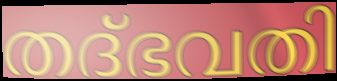
തദ്ഭവതി